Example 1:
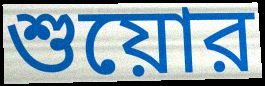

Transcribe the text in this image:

শুয়োর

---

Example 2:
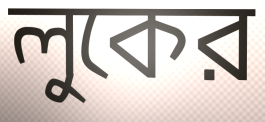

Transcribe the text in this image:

লুকের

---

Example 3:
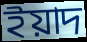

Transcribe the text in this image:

ইয়াদ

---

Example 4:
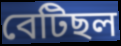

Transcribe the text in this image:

বেটিছল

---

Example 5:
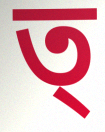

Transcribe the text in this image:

ত্